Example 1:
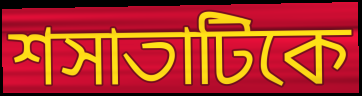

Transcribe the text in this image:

শসাতাটিকে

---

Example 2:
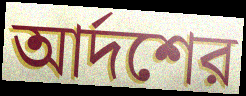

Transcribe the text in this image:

আর্দশের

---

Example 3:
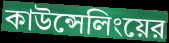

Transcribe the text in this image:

কাউন্সেলিংয়ের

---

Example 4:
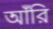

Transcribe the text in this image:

আঁরি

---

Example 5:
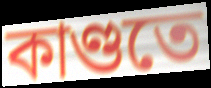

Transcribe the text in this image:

কাণ্ডতে